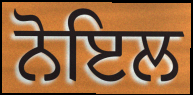
ਨੋਇਲ